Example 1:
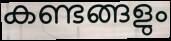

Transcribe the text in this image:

കണ്ടങ്ങളും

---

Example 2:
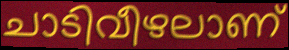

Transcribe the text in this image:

ചാടിവീഴലാണ്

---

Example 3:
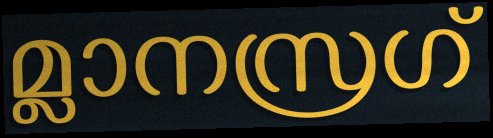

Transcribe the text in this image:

മ്ലാനസ്രഗ്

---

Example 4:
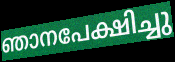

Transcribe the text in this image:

ഞാനപേക്ഷിച്ചു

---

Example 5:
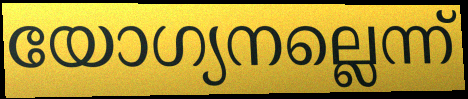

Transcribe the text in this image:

യോഗ്യനല്ലെന്ന്